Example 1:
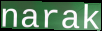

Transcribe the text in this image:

narak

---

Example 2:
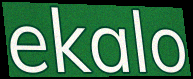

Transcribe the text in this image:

ekalo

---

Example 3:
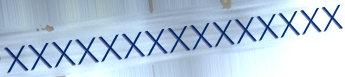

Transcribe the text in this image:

xxxxxxxxxxxxxxx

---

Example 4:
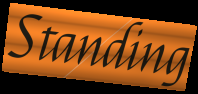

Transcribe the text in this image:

Standing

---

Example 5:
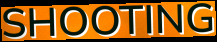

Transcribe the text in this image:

SHOOTING